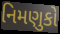
નિમણુકો